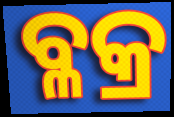
ବ୍ଳକ୍ର